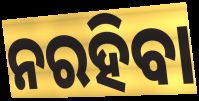
ନରହିବା